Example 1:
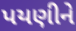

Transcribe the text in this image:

પયણીને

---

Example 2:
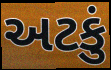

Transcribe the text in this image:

અટકું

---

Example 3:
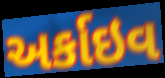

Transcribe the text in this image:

અર્કાઇવ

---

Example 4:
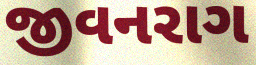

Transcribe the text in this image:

જીવનરાગ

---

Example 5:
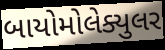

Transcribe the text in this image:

બાયોમોલેક્યુલર